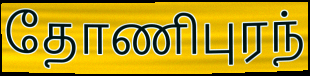
தோணிபுரந்